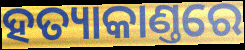
ହତ୍ୟାକାଣ୍ତରେ